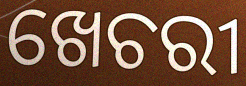
ଖେଚରୀ